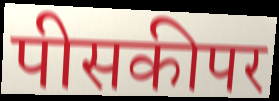
पीसकीपर